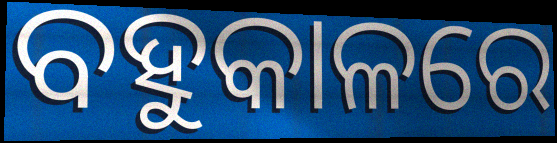
ବହୁକାଳରେ